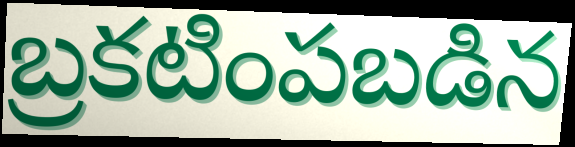
బ్రకటింపబడిన